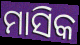
ମାସିକ